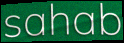
sahab